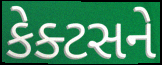
કેક્ટસને